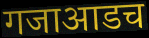
गजाआडच